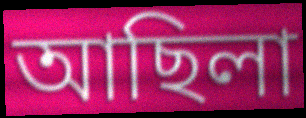
আছিলা